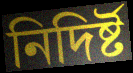
নিদিৰ্ষ্ট